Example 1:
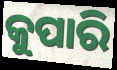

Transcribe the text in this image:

କୁପାରି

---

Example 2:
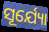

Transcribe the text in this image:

ସୂର୍ଯ୍ୟୋ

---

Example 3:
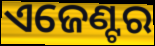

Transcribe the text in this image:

ଏଜେଣ୍ଟର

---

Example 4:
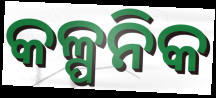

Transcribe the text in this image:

କଳ୍ପନିକ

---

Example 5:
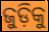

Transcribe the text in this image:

ଜୁଡ଼ିକୁ